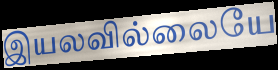
இயலவில்லையே